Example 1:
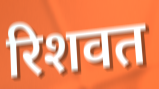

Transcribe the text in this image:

रिशवत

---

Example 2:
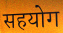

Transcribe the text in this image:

सहयोग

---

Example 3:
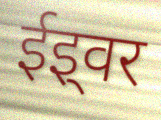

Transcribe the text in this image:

ईइ्वर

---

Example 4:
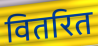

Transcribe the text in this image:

वितरित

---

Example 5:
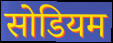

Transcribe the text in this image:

सोडियम